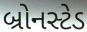
બ્રોનસ્ટેડ